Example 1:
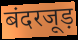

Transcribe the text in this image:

बंदरजूड़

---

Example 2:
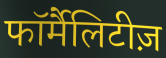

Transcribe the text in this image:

फॉर्मैलिटीज़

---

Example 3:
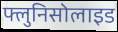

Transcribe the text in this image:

फ्लुनिसोलाइड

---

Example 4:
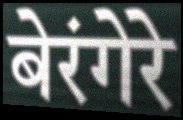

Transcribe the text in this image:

बेरंगेरे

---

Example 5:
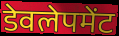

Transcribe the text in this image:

डेवलेपमेंट